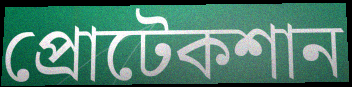
প্রোটেকশান